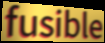
fusible